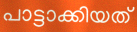
പാട്ടാക്കിയത്